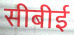
सीबीई